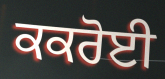
ਕਕਰੋਈ